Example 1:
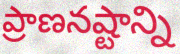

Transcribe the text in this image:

ప్రాణనష్టాన్ని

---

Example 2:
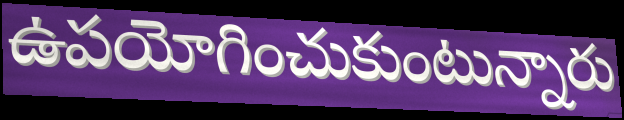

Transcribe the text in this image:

ఉపయోగించుకుంటున్నారు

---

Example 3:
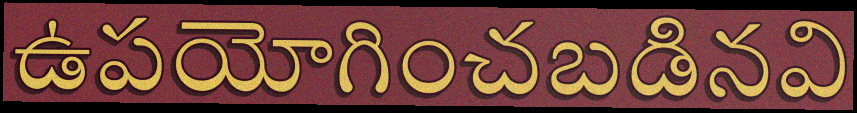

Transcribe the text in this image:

ఉపయోగించబడినవి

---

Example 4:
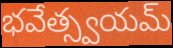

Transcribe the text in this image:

భవేత్స్వయమ్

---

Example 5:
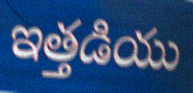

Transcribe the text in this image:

ఇత్తడియు